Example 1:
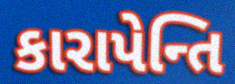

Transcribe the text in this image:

કારાપેન્તિ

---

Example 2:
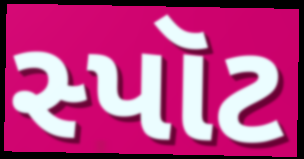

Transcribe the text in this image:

સ્પૉટ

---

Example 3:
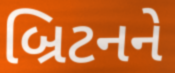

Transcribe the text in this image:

બ્રિટનને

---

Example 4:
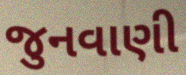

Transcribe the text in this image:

જુનવાણી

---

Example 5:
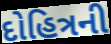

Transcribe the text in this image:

દોહિત્રની